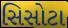
સિસોટા